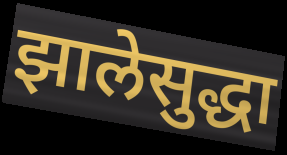
झालेसुद्धा